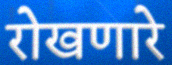
रोखणारे